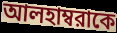
আলহাম্বরাকে